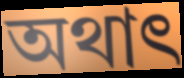
অথাৎ